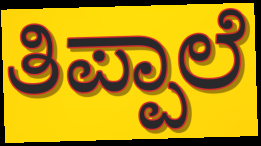
ತಿಪ್ಪಾಲೆ